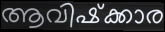
ആവിഷ്‌ക്കാര